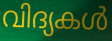
വിദ്യകൾ